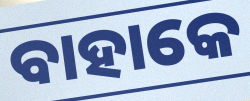
ବାହାକେ